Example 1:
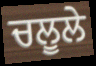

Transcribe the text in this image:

ਚਲੂਲੇ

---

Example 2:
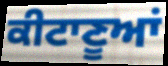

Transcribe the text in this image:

ਕੀਟਾਣੂਆਂ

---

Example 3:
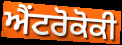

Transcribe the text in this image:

ਐਂਟਰੋਕੋਕੀ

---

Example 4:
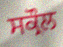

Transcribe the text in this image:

ਸਕ੍ਰੌਲ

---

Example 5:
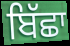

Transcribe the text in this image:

ਬਿੱਛਾ